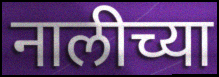
नालीच्या